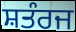
ਸ਼ਤੰਰਜ